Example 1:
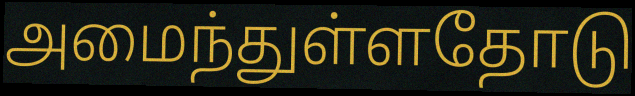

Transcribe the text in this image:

அமைந்துள்ளதோடு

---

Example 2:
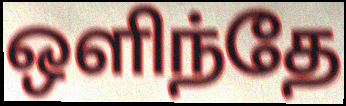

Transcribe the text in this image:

ஒளிந்தே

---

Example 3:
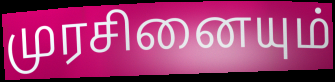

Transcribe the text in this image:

முரசினையும்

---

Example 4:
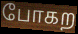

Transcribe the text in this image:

போகற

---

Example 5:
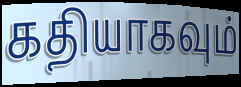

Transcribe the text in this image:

கதியாகவும்